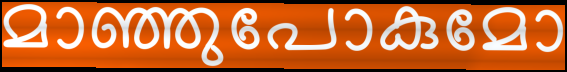
മാഞ്ഞുപോകുമോ